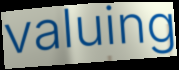
valuing